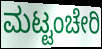
ಮಟ್ಟಂಚೇರಿ